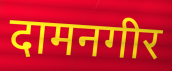
दामनगीर